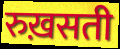
रुख़सती